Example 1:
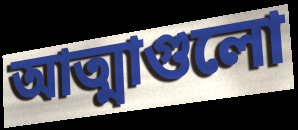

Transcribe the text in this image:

আত্মাগুলো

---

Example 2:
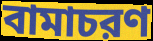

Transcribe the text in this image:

বামাচরণ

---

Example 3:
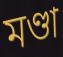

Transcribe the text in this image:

মণ্ডা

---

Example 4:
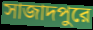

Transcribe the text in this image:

সাজাদপুরে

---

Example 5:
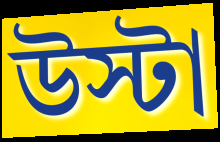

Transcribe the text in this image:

উস্টা